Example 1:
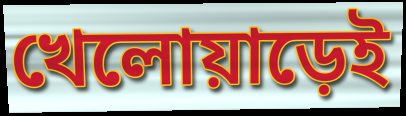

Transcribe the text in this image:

খেলোয়াড়েই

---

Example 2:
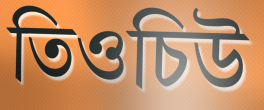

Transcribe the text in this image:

তিওচিউ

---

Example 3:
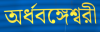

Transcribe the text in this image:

অর্ধবঙ্গেশ্বরী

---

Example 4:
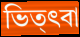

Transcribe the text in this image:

ভিত্ৎবা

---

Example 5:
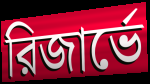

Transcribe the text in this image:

রিজার্ভে